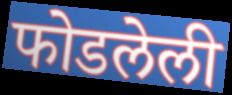
फोडलेली